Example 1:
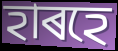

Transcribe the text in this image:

হাৰহে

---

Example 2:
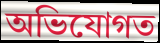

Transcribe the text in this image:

অভিযোগত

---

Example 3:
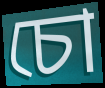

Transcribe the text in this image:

চো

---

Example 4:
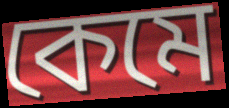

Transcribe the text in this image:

কেমে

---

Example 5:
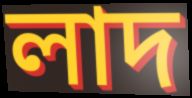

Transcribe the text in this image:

লাদ